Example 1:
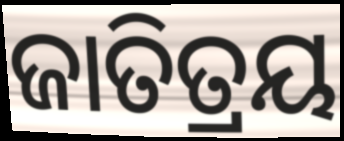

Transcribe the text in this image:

ଜାତିତ୍ରୟ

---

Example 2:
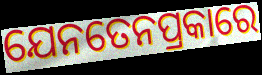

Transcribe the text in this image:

ଯେନତେନପ୍ରକାରେ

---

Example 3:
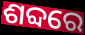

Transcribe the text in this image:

ଶବ୍ଦରେ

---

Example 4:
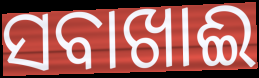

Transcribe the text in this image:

ସବାଖାଈ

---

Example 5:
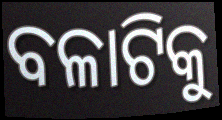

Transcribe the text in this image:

ବଳାଟିକୁ